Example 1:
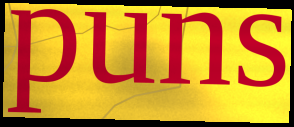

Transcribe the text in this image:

puns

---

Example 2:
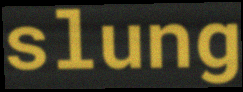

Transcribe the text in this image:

slung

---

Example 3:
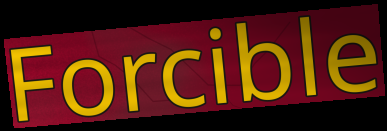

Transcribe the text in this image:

Forcible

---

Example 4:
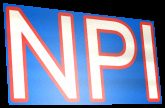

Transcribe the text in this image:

NPI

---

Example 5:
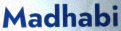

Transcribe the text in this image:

Madhabi